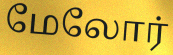
மேலோர்